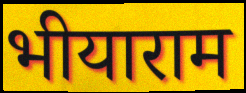
भीयाराम